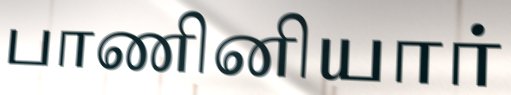
பாணினியார்